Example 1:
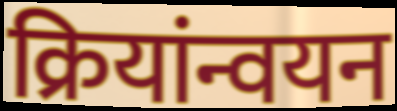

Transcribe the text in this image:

क्रियांन्वयन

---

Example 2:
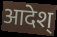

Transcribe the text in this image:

आदेश्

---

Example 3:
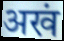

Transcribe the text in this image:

अखं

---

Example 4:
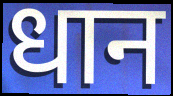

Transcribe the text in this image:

धान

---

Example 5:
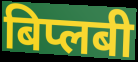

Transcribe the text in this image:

बिप्लबी